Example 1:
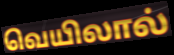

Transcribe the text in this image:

வெயிலால்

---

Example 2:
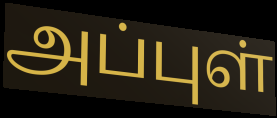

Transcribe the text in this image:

அப்புள்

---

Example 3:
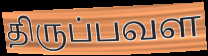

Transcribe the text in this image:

திருப்பவள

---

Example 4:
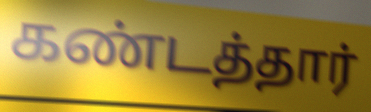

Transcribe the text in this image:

கண்டத்தார்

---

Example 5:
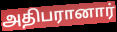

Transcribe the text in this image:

அதிபரானார்